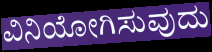
ವಿನಿಯೋಗಿಸುವುದು